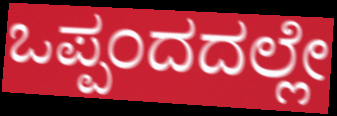
ಒಪ್ಪಂದದಲ್ಲೇ